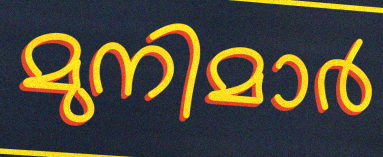
മുനിമാർ